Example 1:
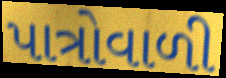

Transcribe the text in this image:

પાત્રોવાળી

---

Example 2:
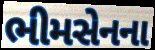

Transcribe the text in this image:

ભીમસેનના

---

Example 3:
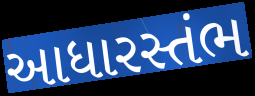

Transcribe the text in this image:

આધારસ્તંભ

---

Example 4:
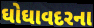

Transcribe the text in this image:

ઘોઘાવદરના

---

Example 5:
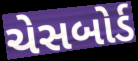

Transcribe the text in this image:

ચેસબોર્ડ